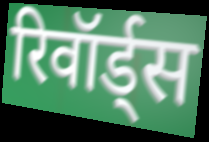
रिवॉर्ड्स